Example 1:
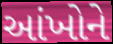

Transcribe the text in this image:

આંખોને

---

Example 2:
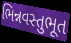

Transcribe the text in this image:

ભિન્નવસ્તુભૂત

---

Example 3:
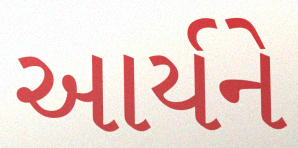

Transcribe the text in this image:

આર્યને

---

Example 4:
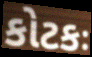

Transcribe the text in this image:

કોટકઃ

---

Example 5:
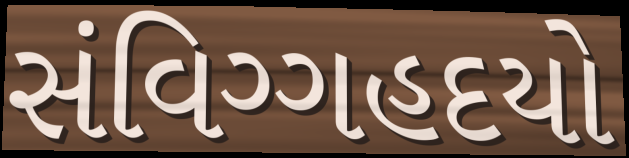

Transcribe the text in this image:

સંવિગ્ગહદયો